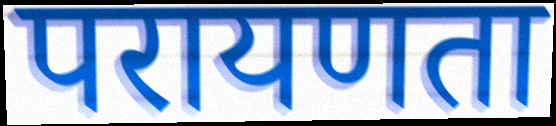
परायणता